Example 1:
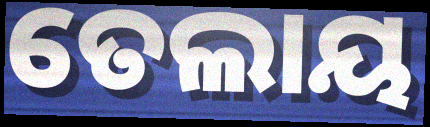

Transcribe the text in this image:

ତେଲାୟ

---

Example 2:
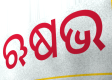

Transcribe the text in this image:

ଋଷଭ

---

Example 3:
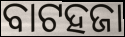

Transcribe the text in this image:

ବାଟହଜା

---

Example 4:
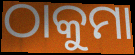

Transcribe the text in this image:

ଠାକୁମା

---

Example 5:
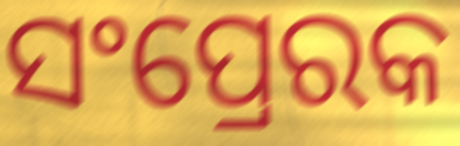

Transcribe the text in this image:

ସଂପ୍ରେରକ